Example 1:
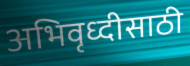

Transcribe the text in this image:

अभिवृध्दीसाठी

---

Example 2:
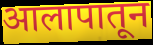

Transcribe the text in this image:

आलापातून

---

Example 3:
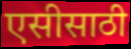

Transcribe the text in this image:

एसीसाठी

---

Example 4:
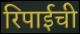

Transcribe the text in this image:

रिपाईची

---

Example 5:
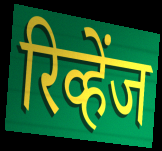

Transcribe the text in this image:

रिव्हेंज